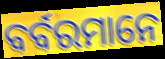
ବର୍ବରମାନେ